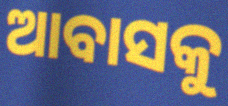
ଆବାସକୁ